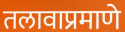
तलावाप्रमाणे